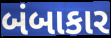
બંબાકાર